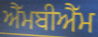
ਐੱਮਬੀਐੱਮ